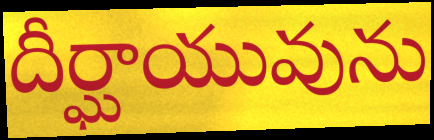
దీర్ఘాయువును